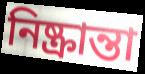
নিষ্ক্রান্তা